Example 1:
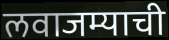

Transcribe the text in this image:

लवाजम्याची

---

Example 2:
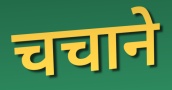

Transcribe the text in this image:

चचाने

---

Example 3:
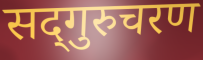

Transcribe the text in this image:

सद्‍गुरुचरण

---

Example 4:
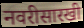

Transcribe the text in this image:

नवरीसारखी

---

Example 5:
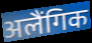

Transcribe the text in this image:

अलैंगिक